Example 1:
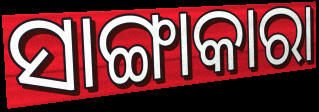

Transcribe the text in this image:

ସାଙ୍ଗାକାରା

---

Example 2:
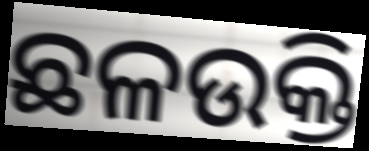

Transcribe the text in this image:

ଛଳଉକ୍ତି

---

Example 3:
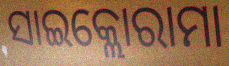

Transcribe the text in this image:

ସାଇକ୍ଲୋରାମା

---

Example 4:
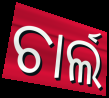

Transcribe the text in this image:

ଚାର୍ଲ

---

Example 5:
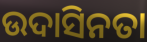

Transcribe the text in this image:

ଉଦାସିନତା